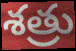
శత్రు